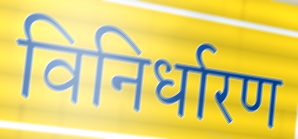
विनिर्धारण